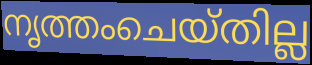
നൃത്തംചെയ്തില്ല